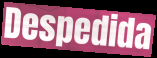
Despedida